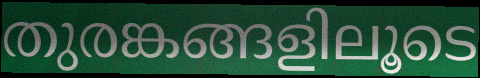
തുരങ്കങ്ങളിലൂടെ